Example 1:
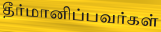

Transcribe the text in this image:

தீர்மானிப்பவர்கள்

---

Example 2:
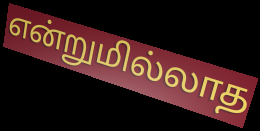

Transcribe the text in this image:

என்றுமில்லாத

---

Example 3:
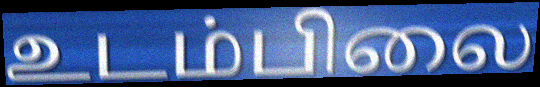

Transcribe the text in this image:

உடம்பிலை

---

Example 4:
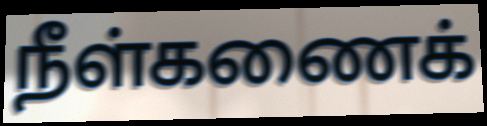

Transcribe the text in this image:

நீள்கணைக்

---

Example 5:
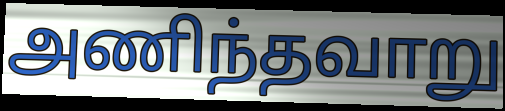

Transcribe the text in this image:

அணிந்தவாறு